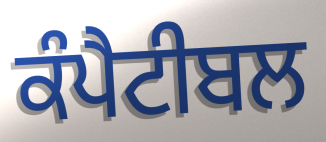
ਕੰਪੈਟੀਬਲ